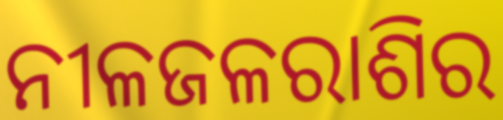
ନୀଳଜଳରାଶିର